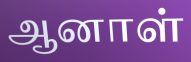
ஆனாள்